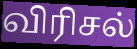
விரிசல்